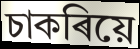
চাকৰিয়ে